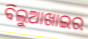
ବିଲୁଆଖାଇର